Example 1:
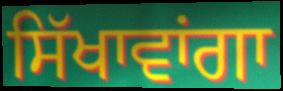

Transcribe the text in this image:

ਸਿੱਖਾਵਾਂਗਾ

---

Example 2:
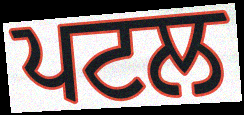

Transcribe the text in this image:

ਪਟਲ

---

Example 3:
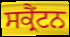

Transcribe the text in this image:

ਸਕ੍ਰੈਂਟਨ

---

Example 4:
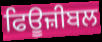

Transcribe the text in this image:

ਫਿਊਜ਼ੀਬਲ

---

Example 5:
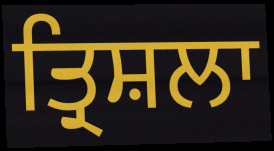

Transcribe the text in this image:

ਤ੍ਰਿਸ਼ਲਾ